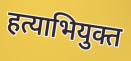
हत्याभियुक्त